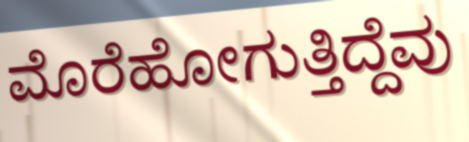
ಮೊರೆಹೋಗುತ್ತಿದ್ದೆವು